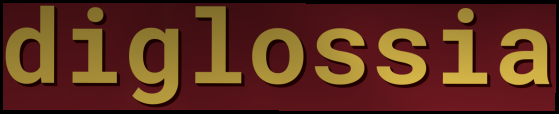
diglossia